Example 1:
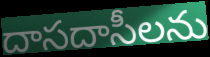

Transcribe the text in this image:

దాసదాసీలను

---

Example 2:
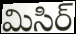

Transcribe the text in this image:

మిసిర్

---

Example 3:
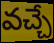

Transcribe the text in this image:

వచ్చే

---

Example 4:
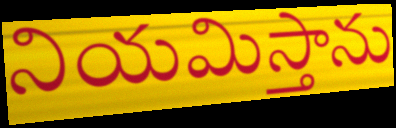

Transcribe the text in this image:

నియమిస్తాను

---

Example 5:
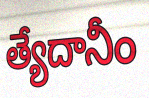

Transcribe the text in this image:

త్యేదానీం